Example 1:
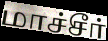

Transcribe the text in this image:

மாச்சீர்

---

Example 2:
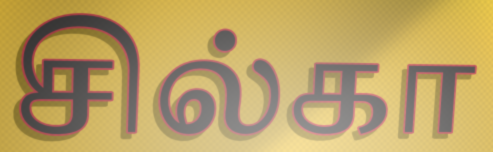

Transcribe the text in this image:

சில்கா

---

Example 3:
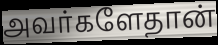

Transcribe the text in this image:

அவர்களேதான்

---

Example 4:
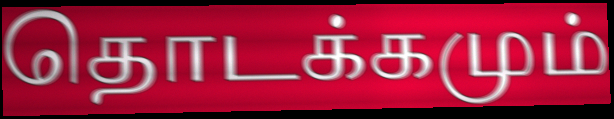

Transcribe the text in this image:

தொடக்கமும்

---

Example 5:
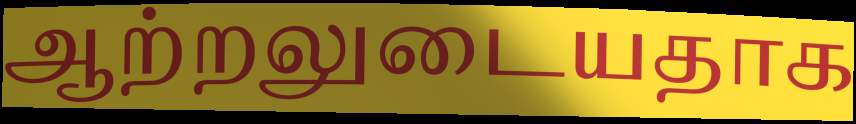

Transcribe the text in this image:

ஆற்றலுடையதாக